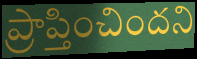
ప్రాప్తించిందని